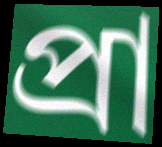
প্রা